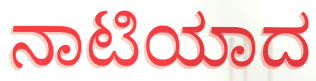
ನಾಟಿಯಾದ